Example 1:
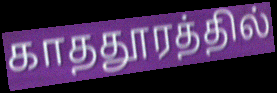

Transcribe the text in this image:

காததூரத்தில்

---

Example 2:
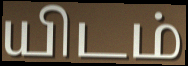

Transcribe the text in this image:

யிடம்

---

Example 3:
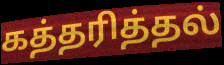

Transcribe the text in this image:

கத்தரித்தல்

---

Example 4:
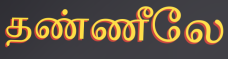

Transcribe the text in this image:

தண்ணீலே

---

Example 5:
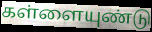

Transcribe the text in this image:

கள்ளையுண்டு